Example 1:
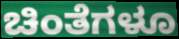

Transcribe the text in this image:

ಚಿಂತೆಗಳೂ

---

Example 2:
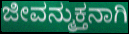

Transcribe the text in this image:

ಜೀವನ್ಮುಕ್ತನಾಗಿ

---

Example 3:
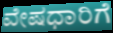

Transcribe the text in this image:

ವೇಷಧಾರಿಗೆ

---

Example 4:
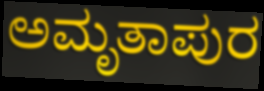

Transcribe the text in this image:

ಅಮೃತಾಪುರ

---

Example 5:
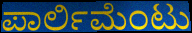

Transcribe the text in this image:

ಪಾರ್ಲಿಮೆಂಟು